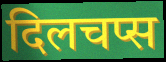
दिलचप्स